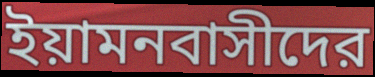
ইয়ামনবাসীদের